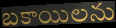
బకాయిలను